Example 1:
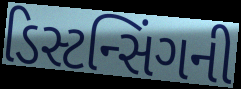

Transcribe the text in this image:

ડિસ્ટન્સિંગની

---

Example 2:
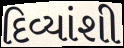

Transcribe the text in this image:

દિવ્યાંશી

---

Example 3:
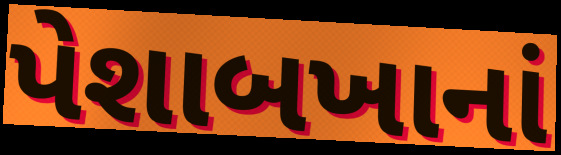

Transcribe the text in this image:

પેશાબખાનાં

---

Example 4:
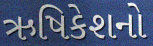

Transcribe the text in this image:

ઋષિકેશનો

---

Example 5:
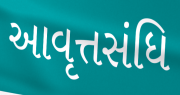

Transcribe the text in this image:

આવૃત્તસંધિ